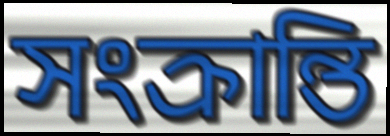
সংক্রান্তি